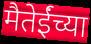
मैतेईंच्या